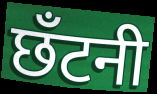
छँटनी